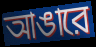
আঙারে